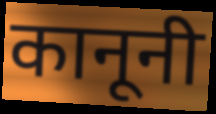
कानूनी